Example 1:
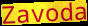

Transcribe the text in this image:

Zavoda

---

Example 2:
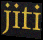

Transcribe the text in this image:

jiti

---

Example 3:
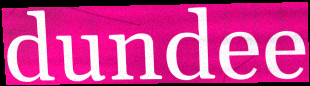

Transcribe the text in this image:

dundee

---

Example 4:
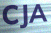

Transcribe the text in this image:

CJA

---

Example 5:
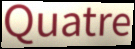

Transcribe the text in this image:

Quatre